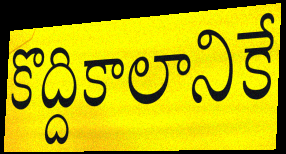
కొద్దికాలానికే